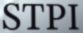
STPI